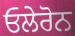
ਓਲੇਰੋਨ